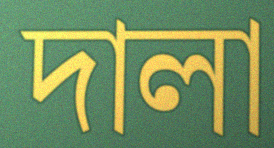
দালা